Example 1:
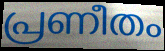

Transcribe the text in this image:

പ്രണീതം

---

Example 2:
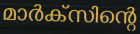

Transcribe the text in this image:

മാർക്‌സിന്റെ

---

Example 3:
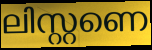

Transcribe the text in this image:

ലിസ്റ്റണെ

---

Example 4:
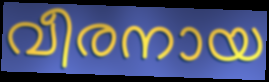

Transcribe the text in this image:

വീരനായ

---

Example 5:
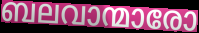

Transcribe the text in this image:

ബലവാന്മാരോ